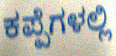
ಕಪ್ಪೆಗಳಲ್ಲಿ